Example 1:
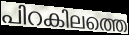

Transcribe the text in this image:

പിറകിലത്തെ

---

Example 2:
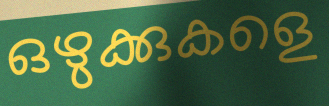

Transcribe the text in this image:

ഒഴുക്കുകളെ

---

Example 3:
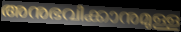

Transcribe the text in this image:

അനുഭവിക്കാനുമുള്ള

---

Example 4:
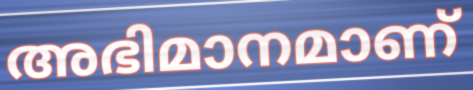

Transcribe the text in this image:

അഭിമാനമാണ്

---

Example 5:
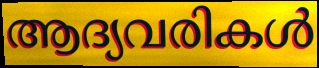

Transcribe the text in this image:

ആദ്യവരികൾ